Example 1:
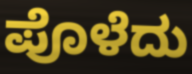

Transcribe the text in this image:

ಪೊಳೆದು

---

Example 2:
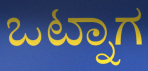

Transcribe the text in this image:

ಒಟ್ನಾಗ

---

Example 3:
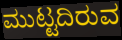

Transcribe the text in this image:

ಮುಟ್ಟದಿರುವ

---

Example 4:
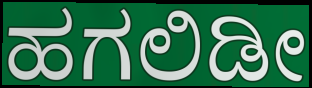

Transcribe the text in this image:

ಹಗಲಿಡೀ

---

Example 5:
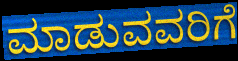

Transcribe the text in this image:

ಮಾಡುವವರಿಗೆ